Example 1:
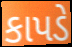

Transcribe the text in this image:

કાપડે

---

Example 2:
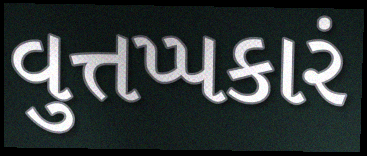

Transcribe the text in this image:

વુત્તપ્પકારં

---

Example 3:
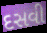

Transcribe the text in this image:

દસવી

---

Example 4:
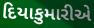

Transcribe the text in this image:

દિયાકુમારીએ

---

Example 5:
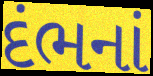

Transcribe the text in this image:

દંભનાં